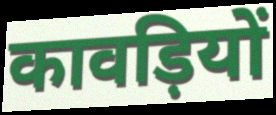
कावड़ियों